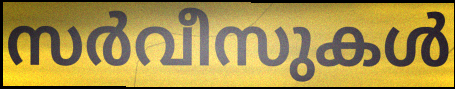
സർവീസുകൾ